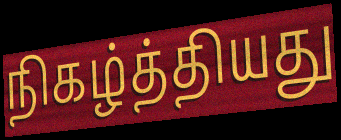
நிகழ்த்தியது